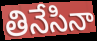
తినేసినా